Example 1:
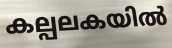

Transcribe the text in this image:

കല്പലകയിൽ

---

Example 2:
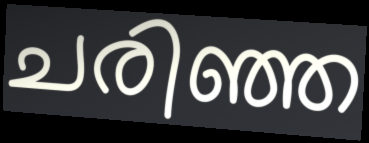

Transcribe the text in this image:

ചരിഞ്ഞ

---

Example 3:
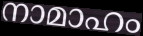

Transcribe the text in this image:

നാമാഹം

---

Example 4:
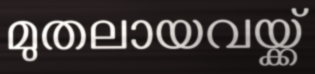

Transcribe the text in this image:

മുതലായവയ്ക്ക്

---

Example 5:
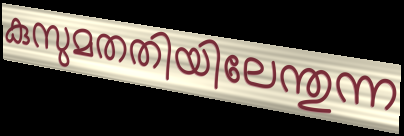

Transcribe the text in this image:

കുസുമതതിയിലേന്തുന്ന